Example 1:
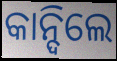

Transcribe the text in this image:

କାନ୍ଦିଲେ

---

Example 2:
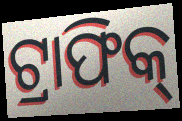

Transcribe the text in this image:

ଟ୍ରାଫିକ୍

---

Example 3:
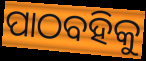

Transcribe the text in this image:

ପାଠବହିକୁ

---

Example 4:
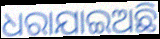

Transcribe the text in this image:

ଧରାଯାଇଅଛି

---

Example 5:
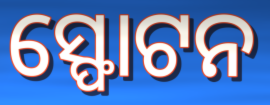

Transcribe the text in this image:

ସ୍ଫୋଟନ